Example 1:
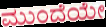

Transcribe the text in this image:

ಮುಂದೆಯೇ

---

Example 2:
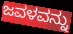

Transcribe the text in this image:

ಜವಳವನ್ನು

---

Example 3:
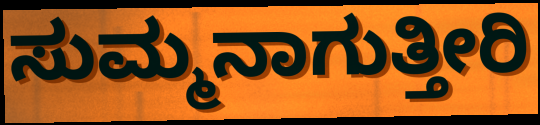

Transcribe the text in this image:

ಸುಮ್ಮನಾಗುತ್ತೀರಿ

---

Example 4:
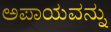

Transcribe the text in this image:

ಅಪಾಯವನ್ನು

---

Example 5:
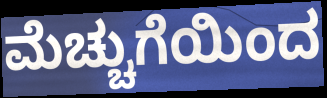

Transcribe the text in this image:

ಮೆಚ್ಚುಗೆಯಿಂದ